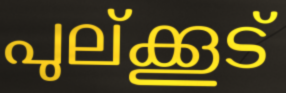
പുല്ക്കൂട്